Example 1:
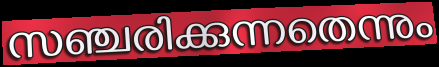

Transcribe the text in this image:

സഞ്ചരിക്കുന്നതെന്നും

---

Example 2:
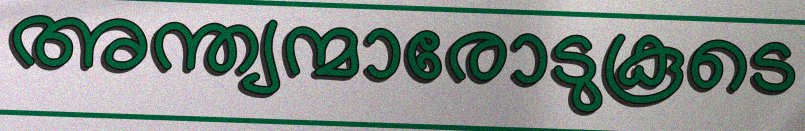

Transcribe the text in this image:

അന്ത്യന്മാരോടുകൂടെ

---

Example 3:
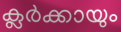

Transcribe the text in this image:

ക്ലർക്കായും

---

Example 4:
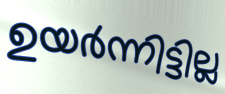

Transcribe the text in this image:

ഉയർന്നിട്ടില്ല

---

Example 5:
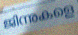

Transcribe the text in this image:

ജിന്നുകളെ